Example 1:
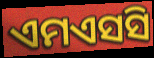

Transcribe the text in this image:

ଏମଏସସି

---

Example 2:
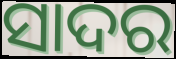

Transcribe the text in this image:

ସାଦର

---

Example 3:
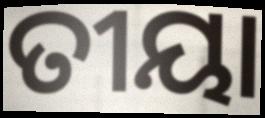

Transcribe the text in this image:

ତୀୟା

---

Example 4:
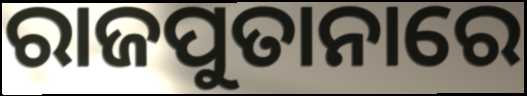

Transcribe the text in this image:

ରାଜପୁତାନାରେ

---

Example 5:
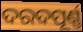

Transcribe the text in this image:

ଦରଦପୂର୍ଣ୍ଣ